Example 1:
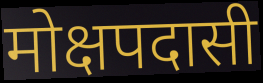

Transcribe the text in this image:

मोक्षपदासी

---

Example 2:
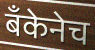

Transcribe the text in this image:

बँकेनेच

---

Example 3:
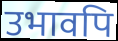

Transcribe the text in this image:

उभावपि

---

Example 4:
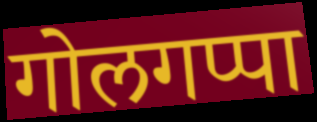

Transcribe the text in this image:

गोलगप्पा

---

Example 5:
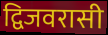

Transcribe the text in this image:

द्विजवरासी